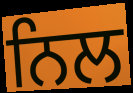
ਨਿਲ